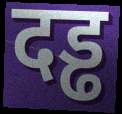
दड्ढ